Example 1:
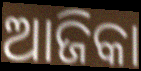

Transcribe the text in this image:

ଆଜିକା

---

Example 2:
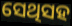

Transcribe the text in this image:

ସେଥିସହ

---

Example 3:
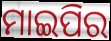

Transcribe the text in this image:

ମାଇପିର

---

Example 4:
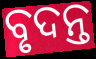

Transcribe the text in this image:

ବୃଦନ୍ତ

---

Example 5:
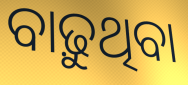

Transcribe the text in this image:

ବାଢ଼ୁଥିବା